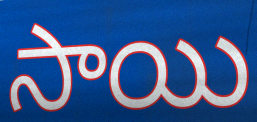
సాయి